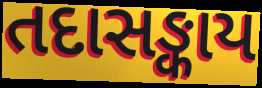
તદાસઙ્કાય